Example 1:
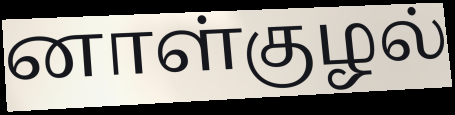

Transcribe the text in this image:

னாள்குழல்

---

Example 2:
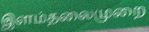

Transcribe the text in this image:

இளம்தலைமுறை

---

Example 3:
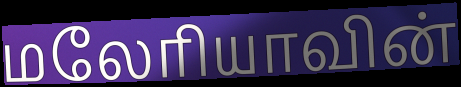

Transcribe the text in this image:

மலேரியாவின்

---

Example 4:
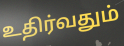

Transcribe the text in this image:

உதிர்வதும்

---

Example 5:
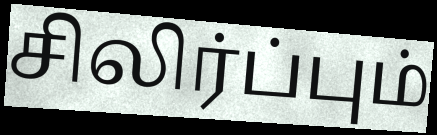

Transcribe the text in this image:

சிலிர்ப்பும்